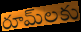
రూమ్‌లకు